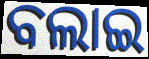
ବଲାଇ